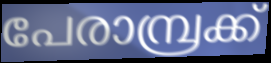
പേരാമ്പ്രക്ക്